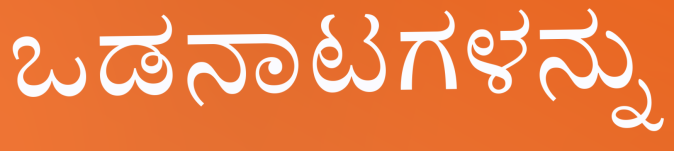
ಒಡನಾಟಗಳನ್ನು